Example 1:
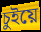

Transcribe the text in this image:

চুইয়ে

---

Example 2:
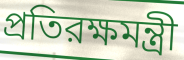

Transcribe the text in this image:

প্রতিরক্ষমন্ত্রী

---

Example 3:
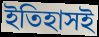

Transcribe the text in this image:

ইতিহাসই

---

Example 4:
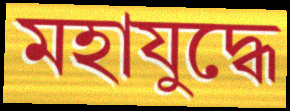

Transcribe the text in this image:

মহাযুদ্ধে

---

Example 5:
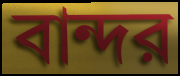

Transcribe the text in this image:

বান্দর